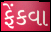
ફેંકવા